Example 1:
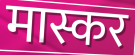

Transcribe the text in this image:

मास्कर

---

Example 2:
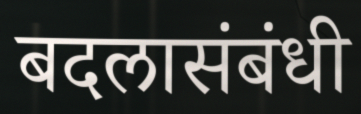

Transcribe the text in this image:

बदलासंबंधी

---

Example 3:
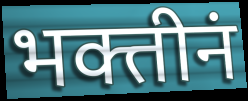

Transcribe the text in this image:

भक्तीनं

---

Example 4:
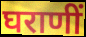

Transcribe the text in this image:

घराणीं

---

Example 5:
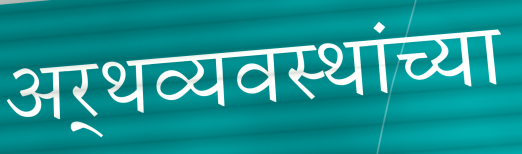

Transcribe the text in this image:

अर्थव्यवस्थांच्या